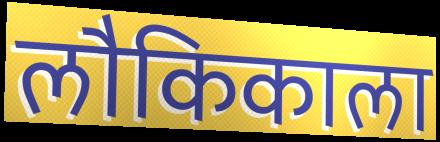
लौकिकाला